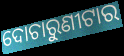
ଦୋଚାରୁଣୀଟାର